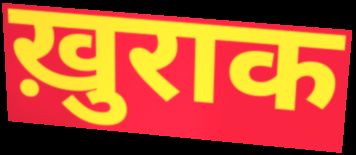
ख़ुराक